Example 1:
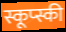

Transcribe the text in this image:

स्कूप्स्की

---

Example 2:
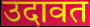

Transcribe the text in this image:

उदावत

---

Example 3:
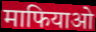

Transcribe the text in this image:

माफियाओ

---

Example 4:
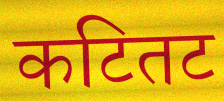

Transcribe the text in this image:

कटितट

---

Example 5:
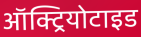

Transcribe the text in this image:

ऑक्ट्रियोटाइड